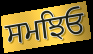
ਸਮਝਿਓ